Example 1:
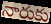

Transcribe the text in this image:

నారుకు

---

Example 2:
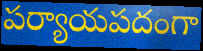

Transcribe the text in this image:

పర్యాయపదంగా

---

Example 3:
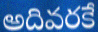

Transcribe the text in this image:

అదివరకే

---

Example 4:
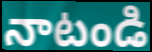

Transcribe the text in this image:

నాటండి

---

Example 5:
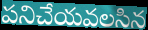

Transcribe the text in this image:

పనిచేయవలసిన